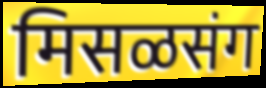
मिसळसंग